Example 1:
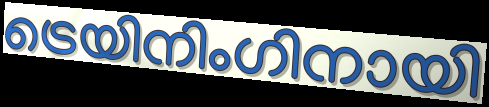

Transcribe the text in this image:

ട്രെയിനിംഗിനായി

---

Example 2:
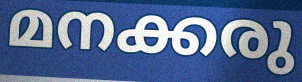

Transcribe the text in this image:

മനക്കരു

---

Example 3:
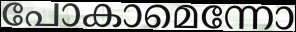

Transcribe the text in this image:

പോകാമെന്നോ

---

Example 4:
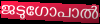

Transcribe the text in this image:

ജടുഗോപാൽ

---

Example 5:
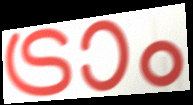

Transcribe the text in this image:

ട്രാം